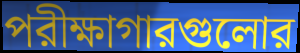
পরীক্ষাগারগুলোর